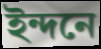
ইন্দনে